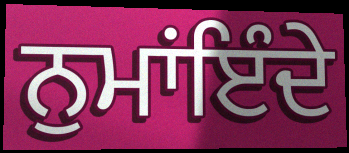
ਨੁਮਾਂਇੰਦੇ